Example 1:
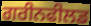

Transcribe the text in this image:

ਗਰੀਨਫੀਲਡ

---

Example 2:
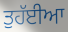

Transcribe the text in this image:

ਤੁਹੱਈਆ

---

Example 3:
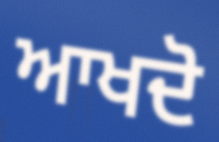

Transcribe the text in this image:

ਆਖਦੋ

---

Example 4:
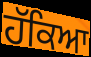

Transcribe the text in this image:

ਹੱਕਿਆ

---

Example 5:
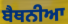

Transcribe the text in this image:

ਬੈਥਨੀਆ